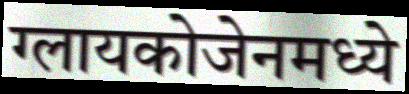
ग्लायकोजेनमध्ये